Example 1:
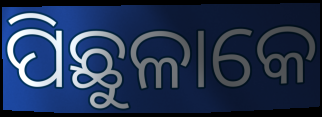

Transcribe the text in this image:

ପିଛୁଳାକେ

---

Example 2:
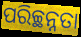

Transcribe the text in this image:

ପରିଚ୍ଛନ୍ନତା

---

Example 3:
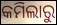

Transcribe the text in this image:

କମିଲାରୁ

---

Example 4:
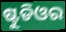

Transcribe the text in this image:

ଷ୍ଟୁଡିଓର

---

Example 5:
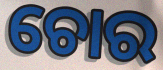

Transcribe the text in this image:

ଚୋର